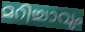
മറിച്ചാവും